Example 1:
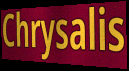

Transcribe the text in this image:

Chrysalis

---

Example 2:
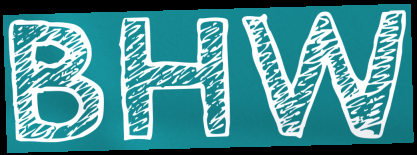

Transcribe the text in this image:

BHW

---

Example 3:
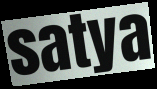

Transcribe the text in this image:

satya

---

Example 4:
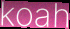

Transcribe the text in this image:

koah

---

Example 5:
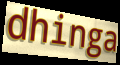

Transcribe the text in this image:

dhinga